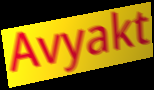
Avyakt